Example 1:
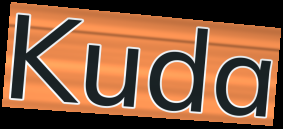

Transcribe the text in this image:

Kuda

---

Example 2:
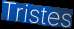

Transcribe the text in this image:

Tristes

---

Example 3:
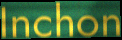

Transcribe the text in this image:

Inchon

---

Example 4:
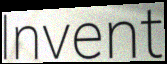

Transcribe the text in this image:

Invent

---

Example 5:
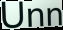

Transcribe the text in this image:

Unn